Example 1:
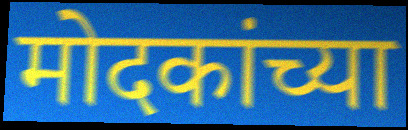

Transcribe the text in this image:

मोदकांच्या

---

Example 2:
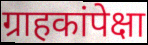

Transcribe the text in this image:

ग्राहकांपेक्षा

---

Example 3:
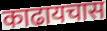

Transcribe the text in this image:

काढायचास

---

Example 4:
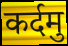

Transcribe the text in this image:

कर्दमु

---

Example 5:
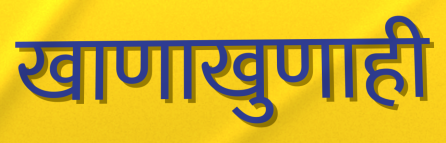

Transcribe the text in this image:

खाणाखुणाही